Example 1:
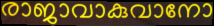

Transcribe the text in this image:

രാജാവാകുവാനോ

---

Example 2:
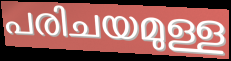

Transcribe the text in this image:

പരിചയമുള്ള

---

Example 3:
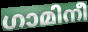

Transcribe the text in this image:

ഗാമിനീ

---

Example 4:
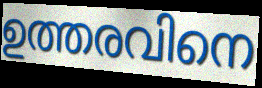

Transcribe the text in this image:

ഉത്തരവിനെ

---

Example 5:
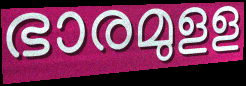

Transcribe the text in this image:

ഭാരമുളള